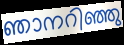
ഞാനറിഞ്ഞു